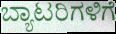
ಬ್ಯಾಟರಿಗಳಿಗೆ